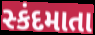
સ્કંદમાતા